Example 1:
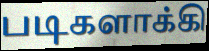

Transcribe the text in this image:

படிகளாக்கி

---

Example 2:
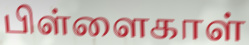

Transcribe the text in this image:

பிள்ளைகாள்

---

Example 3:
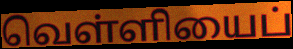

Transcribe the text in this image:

வெள்ளியைப்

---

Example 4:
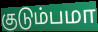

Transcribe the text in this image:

குடும்பமா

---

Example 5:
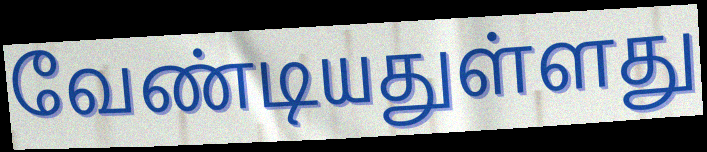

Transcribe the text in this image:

வேண்டியதுள்ளது